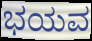
ಭಯವ